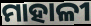
ମାହାଳୀ